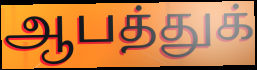
ஆபத்துக்